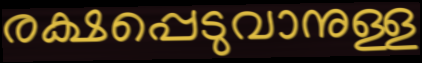
രക്ഷപ്പെടുവാനുള്ള